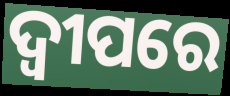
ଦ୍ୱୀପରେ